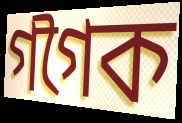
গগৈক